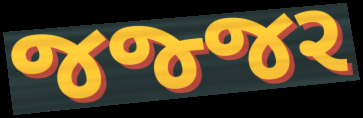
જજ્જર